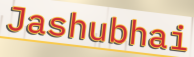
Jashubhai